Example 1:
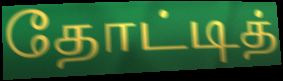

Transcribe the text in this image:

தோட்டித்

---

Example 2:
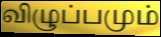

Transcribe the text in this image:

விழுப்பமும்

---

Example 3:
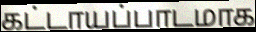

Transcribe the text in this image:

கட்டாயப்பாடமாக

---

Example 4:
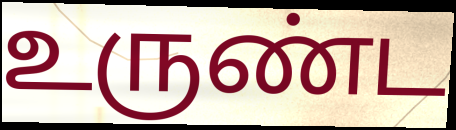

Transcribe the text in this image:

உருண்ட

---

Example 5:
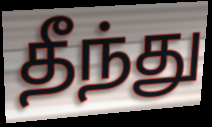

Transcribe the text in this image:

தீந்து